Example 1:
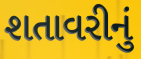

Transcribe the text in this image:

શતાવરીનું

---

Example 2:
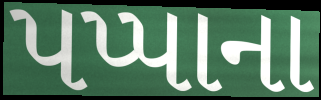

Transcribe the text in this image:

પપ્પાના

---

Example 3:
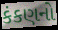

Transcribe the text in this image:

કંકણનો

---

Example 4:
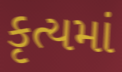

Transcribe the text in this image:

કૃત્યમાં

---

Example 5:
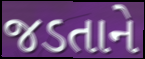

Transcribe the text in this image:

જડતાને